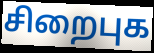
சிறைபுக